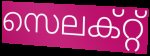
സെലക്റ്റ്